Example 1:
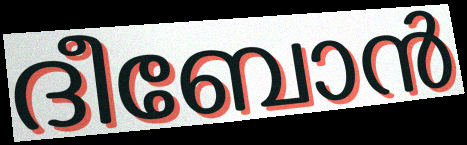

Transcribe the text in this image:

ദീബോൻ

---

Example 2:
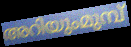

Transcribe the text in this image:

അറിയുംമുമ്പ്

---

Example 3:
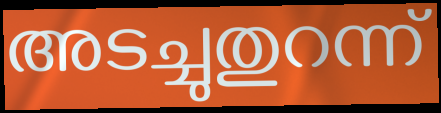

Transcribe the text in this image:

അടച്ചുതുറന്ന്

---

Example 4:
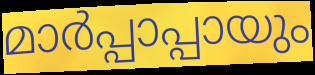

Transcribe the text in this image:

മാർപ്പാപ്പായും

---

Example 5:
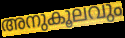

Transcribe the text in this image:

അനുകൂലവും